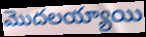
మొదలయ్యాయి